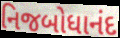
નિજબોધાનંદ